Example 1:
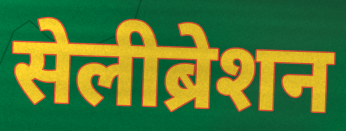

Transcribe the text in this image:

सेलीब्रेशन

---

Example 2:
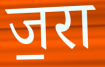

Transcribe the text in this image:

ज॒रा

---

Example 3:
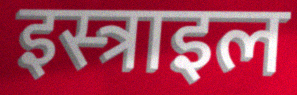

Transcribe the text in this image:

इस्त्राइल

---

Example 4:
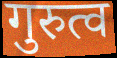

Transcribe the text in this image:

गुरुत्व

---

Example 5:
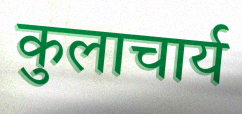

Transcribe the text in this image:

कुलाचार्य